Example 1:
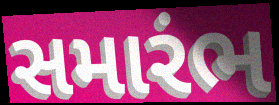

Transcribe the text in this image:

સમારંભ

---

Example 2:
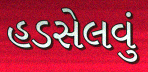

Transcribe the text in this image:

હડસેલવું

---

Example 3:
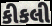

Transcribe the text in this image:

કીકલી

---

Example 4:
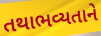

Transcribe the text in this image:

તથાભવ્યતાને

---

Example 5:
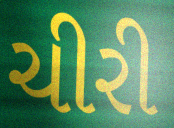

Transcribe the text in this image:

ચીરી